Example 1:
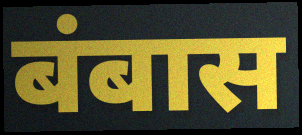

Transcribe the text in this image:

बंबास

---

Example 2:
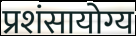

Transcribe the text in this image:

प्रशंसायोग्य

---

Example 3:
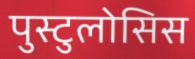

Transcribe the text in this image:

पुस्टुलोसिस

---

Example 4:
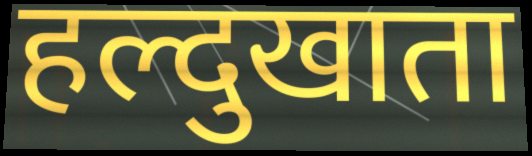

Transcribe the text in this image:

हल्दुखाता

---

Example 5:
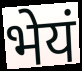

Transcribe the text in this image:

भेयं